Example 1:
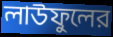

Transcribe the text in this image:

লাউফুলের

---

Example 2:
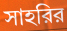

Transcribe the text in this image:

সাহরির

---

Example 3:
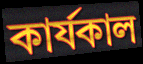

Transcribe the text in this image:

কার্যকাল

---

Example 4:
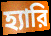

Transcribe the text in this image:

হ্যারি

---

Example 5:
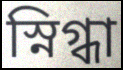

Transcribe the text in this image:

স্নিগ্ধা